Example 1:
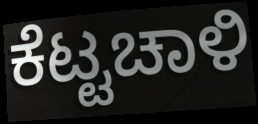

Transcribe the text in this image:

ಕೆಟ್ಟಚಾಳಿ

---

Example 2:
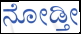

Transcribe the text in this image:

ನೋಡ್ತೀ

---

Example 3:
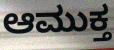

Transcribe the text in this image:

ಆಮುಕ್ತ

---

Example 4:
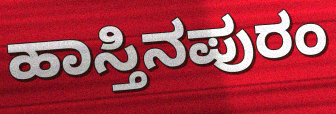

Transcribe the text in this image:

ಹಾಸ್ತಿನಪುರಂ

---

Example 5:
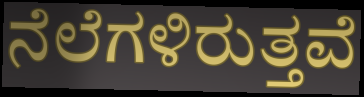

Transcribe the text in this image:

ನೆಲೆಗಳಿರುತ್ತವೆ